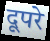
दूपरे